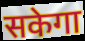
सकेगा